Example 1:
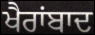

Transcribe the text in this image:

ਖੈਰਾਂਬਾਦ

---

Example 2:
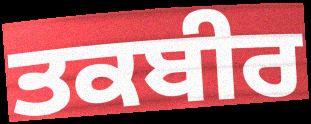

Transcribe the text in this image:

ਤਕਬੀਰ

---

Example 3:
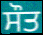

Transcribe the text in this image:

ਸੌਤ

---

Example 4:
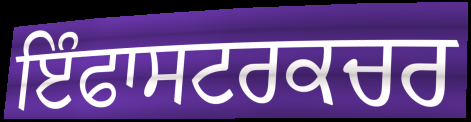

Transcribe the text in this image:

ਇੰਫਾਸਟਰਕਚਰ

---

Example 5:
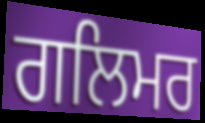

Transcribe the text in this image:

ਗਲਿਮਰ